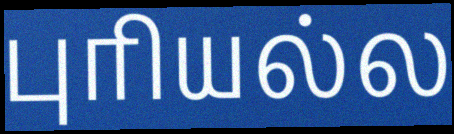
புரியல்ல